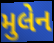
મુલેન